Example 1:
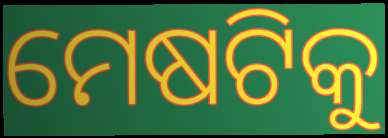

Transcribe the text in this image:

ମେଷଟିକୁ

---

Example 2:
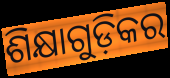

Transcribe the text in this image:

ଶିକ୍ଷାଗୁଡ଼ିକର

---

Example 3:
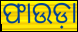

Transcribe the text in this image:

ଫାଉଡ଼ା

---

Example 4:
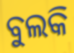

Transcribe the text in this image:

ବୁଲକି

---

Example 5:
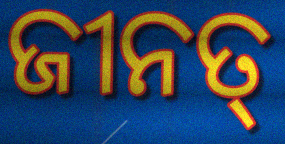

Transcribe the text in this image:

ଜୀନତ୍